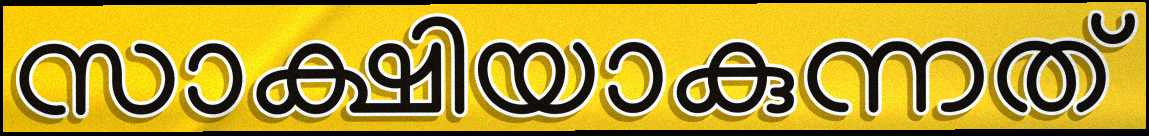
സാക്ഷിയാകുന്നത്